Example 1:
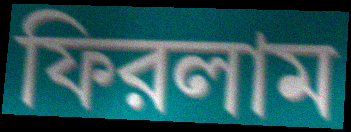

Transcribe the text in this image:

ফিরলাম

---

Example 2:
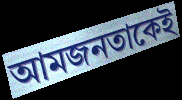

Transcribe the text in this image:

আমজনতাকেই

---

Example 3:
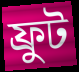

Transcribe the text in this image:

ফ্রুট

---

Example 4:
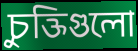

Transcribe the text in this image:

চুক্তিগুলো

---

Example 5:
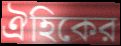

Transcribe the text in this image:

ঐহিকের